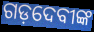
ଗଡ଼ଦେବୀଙ୍କ